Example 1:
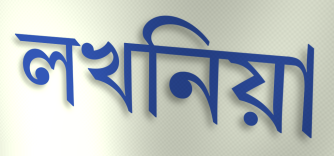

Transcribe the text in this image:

লখনিয়া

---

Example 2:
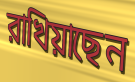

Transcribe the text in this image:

রাখিয়াছেন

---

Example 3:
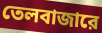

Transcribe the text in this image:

তেলবাজারে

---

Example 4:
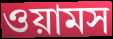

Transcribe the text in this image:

ওয়ামস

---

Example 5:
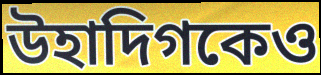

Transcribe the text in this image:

উহাদিগকেও